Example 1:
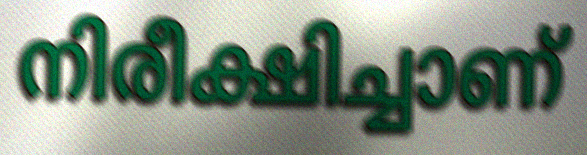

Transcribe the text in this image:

നിരീക്ഷിച്ചാണ്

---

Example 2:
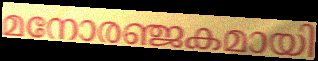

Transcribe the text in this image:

മനോരഞ്ജകമായി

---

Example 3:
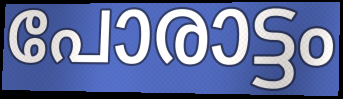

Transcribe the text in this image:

പോരാട്ടം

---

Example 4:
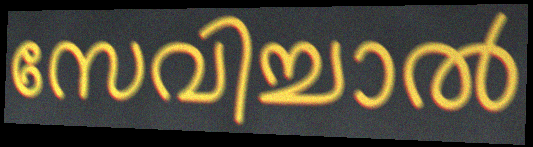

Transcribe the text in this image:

സേവിച്ചാൽ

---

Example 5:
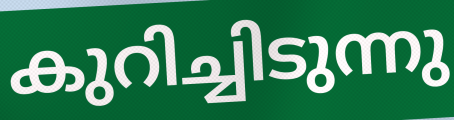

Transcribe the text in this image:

കുറിച്ചിടുന്നു